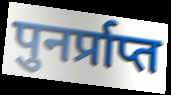
पुनर्प्राप्त